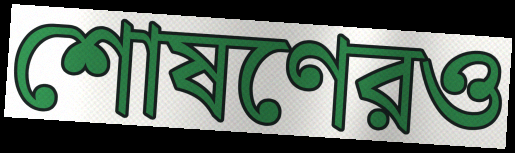
শোষণেরও